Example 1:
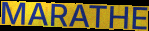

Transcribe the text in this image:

MARATHE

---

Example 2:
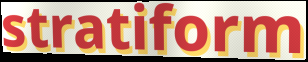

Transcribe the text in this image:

stratiform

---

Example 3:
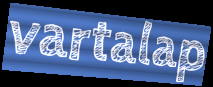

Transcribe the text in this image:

vartalap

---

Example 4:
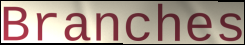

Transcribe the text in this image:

Branches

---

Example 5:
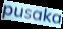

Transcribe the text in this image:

pusaka